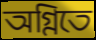
অগ্নিতে